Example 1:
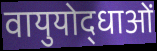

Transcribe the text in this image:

वायुयोद्धाओं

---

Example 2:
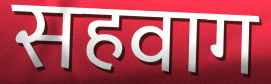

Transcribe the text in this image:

सहवाग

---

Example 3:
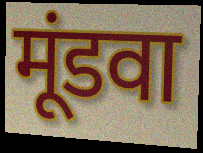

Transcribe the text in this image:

मूंडवा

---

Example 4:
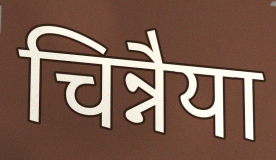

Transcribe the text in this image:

चिन्नैया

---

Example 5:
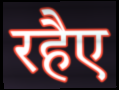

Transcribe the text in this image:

रहैए